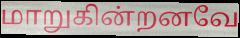
மாறுகின்றனவே